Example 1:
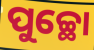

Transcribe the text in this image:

ପୁଚ୍ଛୋ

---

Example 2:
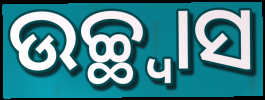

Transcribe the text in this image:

ଉଚ୍ଛ୍ୱାସ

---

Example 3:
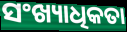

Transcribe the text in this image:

ସଂଖ୍ୟାଧିକତା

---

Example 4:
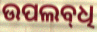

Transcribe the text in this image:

ଉପଲବ୍‌ଧି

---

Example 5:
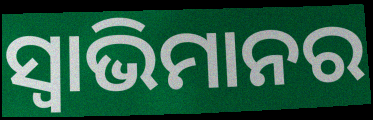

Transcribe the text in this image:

ସ୍ଵାଭିମାନର